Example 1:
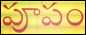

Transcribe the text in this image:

పూపం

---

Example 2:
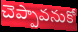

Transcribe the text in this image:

చెప్పావనుకో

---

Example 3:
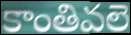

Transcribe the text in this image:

కాంతివలె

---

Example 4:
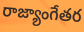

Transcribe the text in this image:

రాజ్యాంగేతర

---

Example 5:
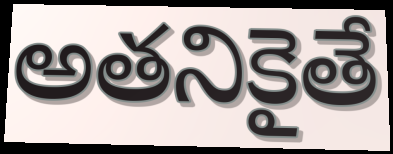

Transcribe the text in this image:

అతనికైతే